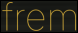
frem